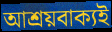
আশ্ৰয়বাক্যই